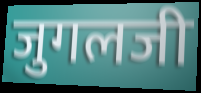
जुगलजी